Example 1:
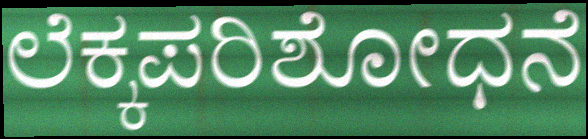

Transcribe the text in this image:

ಲೆಕ್ಕಪರಿಶೋಧನೆ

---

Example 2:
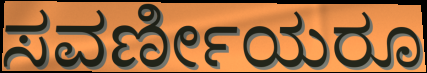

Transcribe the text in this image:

ಸವರ್ಣೀಯರೂ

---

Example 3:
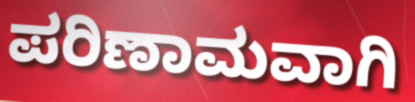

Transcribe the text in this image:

ಪರಿಣಾಮವಾಗಿ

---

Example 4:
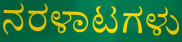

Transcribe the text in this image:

ನರಳಾಟಗಳು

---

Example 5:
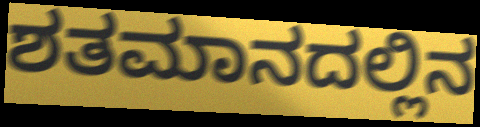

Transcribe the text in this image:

ಶತಮಾನದಲ್ಲಿನ